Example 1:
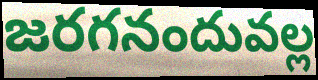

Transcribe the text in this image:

జరగనందువల్ల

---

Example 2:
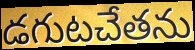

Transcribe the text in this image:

డగుటచేతను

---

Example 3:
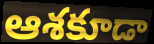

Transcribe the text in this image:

ఆశకూడా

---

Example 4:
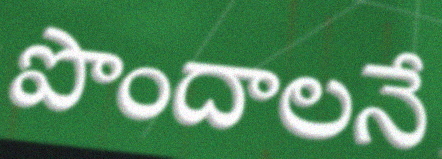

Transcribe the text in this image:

పొందాలనే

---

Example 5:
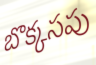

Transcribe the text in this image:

బొక్కసపు